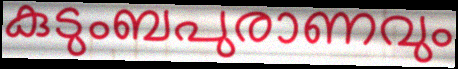
കുടുംബപുരാണവും